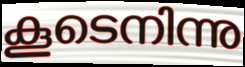
കൂടെനിന്നു